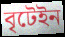
বৃটেইন